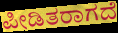
ಪೀಡಿತರಾಗದೆ